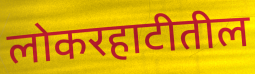
लोकरहाटीतील